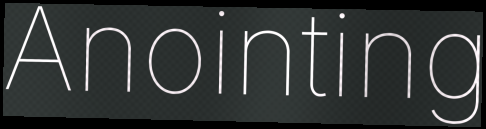
Anointing